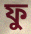
ফু